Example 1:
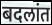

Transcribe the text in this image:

बदलांत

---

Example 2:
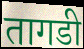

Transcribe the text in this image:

तागडी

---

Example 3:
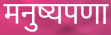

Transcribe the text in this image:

मनुष्यपणा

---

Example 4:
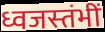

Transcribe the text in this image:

ध्वजस्तंभीं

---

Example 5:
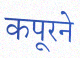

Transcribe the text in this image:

कपूरने